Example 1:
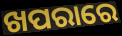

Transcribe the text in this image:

ଖପରାରେ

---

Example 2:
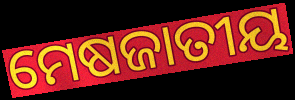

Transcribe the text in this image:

ମେଷଜାତୀୟ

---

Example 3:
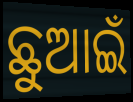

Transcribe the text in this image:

ଛୁଆଇଁ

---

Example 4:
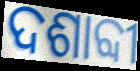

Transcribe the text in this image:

ଦଶାବ୍ଦୀ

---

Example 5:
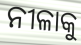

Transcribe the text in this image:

ନୀଳାକୁ